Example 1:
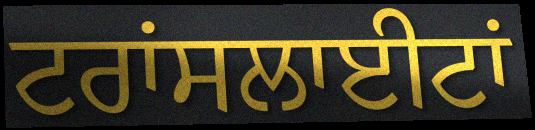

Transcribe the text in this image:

ਟਰਾਂਸਲਾਈਟਾਂ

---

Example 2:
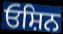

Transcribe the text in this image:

ਓਸ਼ਿਨ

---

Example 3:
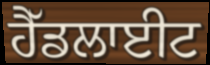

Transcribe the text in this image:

ਹੈੱਡਲਾਈਟ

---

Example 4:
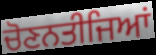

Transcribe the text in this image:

ਚੋਣਨਤੀਜਿਆਂ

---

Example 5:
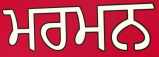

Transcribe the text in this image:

ਮਰਮਨ